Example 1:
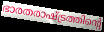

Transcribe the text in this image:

ഭാരതരാഷ്ട്രത്തിന്റെ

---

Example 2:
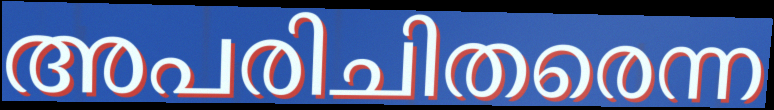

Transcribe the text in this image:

അപരിചിതരെന്ന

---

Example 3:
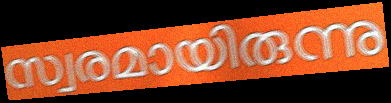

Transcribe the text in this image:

സ്വരമായിരുന്നു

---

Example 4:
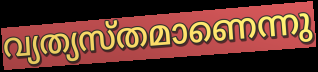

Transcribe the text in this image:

വ്യത്യസ്തമാണെന്നു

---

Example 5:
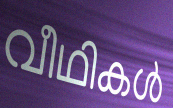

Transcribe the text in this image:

വീഥികൾ